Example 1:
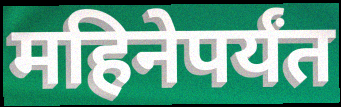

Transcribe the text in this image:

महिनेपर्यंत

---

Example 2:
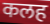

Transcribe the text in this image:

कलह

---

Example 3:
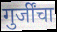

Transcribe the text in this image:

गुर्जींचा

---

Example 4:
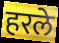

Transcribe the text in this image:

हरले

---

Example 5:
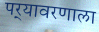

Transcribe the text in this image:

पर्यावरणाला